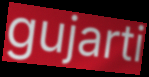
gujarti